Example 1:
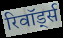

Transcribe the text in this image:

रिवॉर्ड्स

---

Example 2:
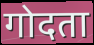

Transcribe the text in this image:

गोदता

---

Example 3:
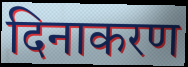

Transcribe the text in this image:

दिनाकरण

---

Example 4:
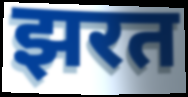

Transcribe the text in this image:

झरत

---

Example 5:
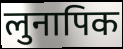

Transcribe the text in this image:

लुनापिक